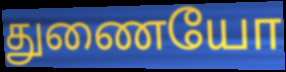
துணையோ